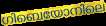
ഗിബെയോനിലെ